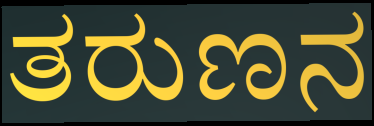
ತರುಣನ